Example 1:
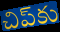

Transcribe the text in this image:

చిప్‌కు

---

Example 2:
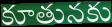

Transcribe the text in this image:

కూతునకు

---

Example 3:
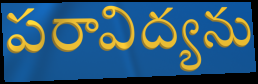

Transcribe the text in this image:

పరావిద్యను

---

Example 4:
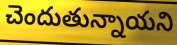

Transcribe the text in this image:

చెందుతున్నాయని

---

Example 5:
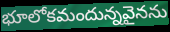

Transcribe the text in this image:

భూలోకమందున్నవైనను